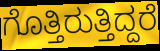
ಗೊತ್ತಿರುತ್ತಿದ್ದರೆ